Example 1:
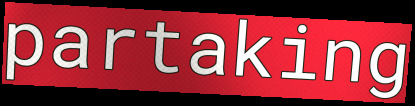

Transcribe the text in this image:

partaking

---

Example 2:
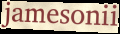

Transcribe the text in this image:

jamesonii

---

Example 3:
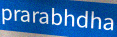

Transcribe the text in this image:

prarabhdha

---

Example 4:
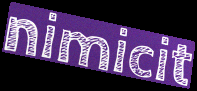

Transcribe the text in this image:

nimicit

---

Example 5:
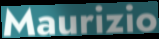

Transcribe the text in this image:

Maurizio